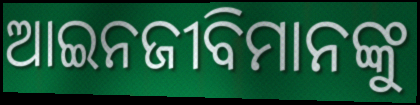
ଆଇନଜୀବିମାନଙ୍କୁ